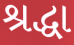
શ્રદ્ધા